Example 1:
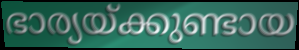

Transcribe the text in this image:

ഭാര്യയ്ക്കുണ്ടായ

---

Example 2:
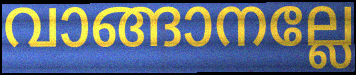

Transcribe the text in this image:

വാങ്ങാനല്ലേ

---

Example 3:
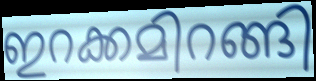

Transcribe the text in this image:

ഇറക്കമിറങ്ങി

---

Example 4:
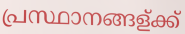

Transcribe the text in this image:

പ്രസ്ഥാനങ്ങള്ക്ക്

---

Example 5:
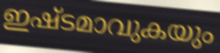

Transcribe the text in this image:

ഇഷ്ടമാവുകയും